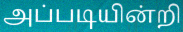
அப்படியின்றி